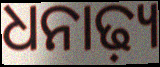
ଧନାଢ଼୍ୟ